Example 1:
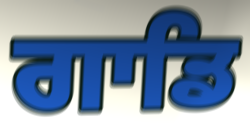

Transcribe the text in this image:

ਗਾਡਿ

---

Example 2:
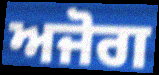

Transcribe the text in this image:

ਅਜੋਗ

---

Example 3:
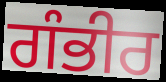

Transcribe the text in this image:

ਗੰਭੀਰ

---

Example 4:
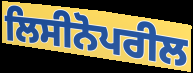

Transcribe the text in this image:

ਲਿਸੀਨੋਪਰੀਲ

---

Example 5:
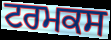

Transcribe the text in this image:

ਟਰਮਕਸ